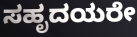
ಸಹೃದಯರೇ